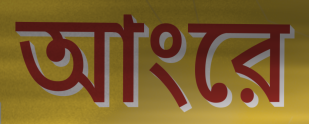
আংরে